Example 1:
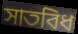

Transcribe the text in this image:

সাতবিধ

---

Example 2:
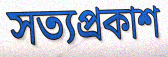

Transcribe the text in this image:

সত্যপ্ৰকাশ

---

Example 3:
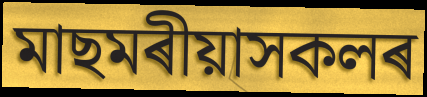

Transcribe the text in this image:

মাছমৰীয়াসকলৰ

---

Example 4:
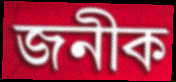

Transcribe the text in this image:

জনীক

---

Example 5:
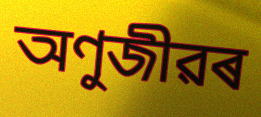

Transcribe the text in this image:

অণুজীৱৰ